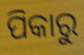
ପିକାରୁ